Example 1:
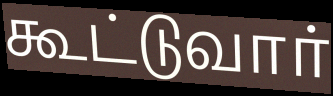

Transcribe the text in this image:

கூட்டுவார்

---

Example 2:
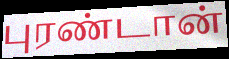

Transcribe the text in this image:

புரண்டான்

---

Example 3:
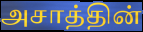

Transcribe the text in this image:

அசாத்தின்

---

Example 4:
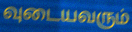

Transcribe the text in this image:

வுடையவரும்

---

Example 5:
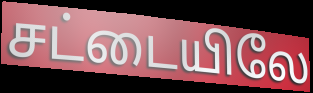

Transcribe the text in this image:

சட்டையிலே